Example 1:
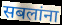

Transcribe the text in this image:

सबलांना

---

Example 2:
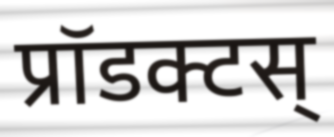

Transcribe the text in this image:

प्रॉडक्टस्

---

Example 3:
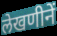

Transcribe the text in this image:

लेखणीनें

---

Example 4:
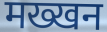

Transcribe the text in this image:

मख्खन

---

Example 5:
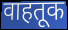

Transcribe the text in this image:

वाहतूक